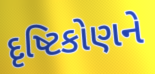
દૃષ્ટિકોણને